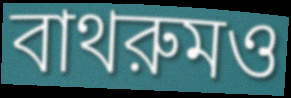
বাথরুমও